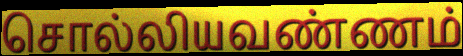
சொல்லியவண்ணம்